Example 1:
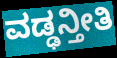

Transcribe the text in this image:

ವಡ್ಢನ್ತೀತಿ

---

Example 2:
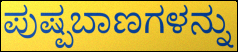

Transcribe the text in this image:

ಪುಷ್ಪಬಾಣಗಳನ್ನು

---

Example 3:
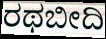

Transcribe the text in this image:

ರಥಬೀದಿ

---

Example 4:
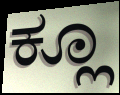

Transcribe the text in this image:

ಕ್ಲೂ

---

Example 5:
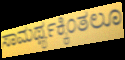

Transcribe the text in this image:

ಸಾಮರ್ಥ್ಯಕ್ಕಿಂತಲೂ